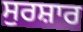
ਸੁਰਸ਼ਾਰ